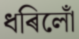
ধৰিলোঁ